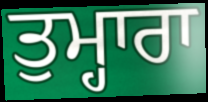
ਤੁਮ੍ਹਾਰਾ